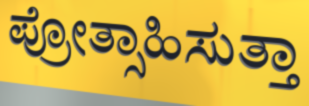
ಪ್ರೋತ್ಸಾಹಿಸುತ್ತಾ